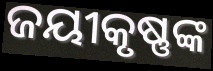
ଜୟୀକୃଷ୍ଣଙ୍କ